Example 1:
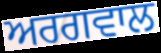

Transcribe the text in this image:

ਅਰਗਵਾਲ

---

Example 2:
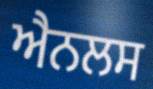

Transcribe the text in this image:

ਐਨਲਸ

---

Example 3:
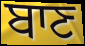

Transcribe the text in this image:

ਬਾਣ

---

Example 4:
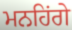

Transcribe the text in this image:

ਮਨਹਿਂਗੇ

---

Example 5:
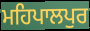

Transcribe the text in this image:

ਮਹਿਪਾਲਪੁਰ